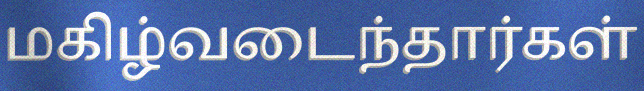
மகிழ்வடைந்தார்கள்